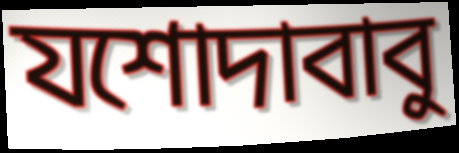
যশোদাবাবু